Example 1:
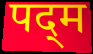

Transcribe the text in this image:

पद्‌म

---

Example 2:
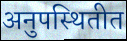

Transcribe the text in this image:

अनुपस्थितीत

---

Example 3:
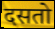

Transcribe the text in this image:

दसतो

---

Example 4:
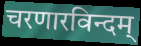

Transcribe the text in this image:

चरणारविन्दम्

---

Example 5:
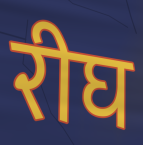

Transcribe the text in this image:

रीघ